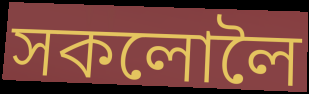
সকলোলৈ